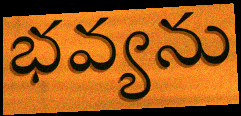
భవ్యను